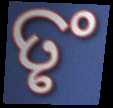
ତୃଂ